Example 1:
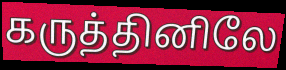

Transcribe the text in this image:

கருத்தினிலே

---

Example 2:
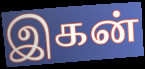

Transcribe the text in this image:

இகன்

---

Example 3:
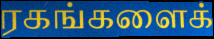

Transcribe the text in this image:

ரகங்களைக்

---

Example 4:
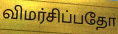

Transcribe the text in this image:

விமர்சிப்பதோ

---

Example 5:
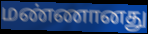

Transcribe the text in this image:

மண்ணானது